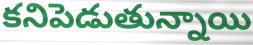
కనిపెడుతున్నాయి